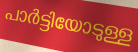
പാർട്ടിയോടുള്ള